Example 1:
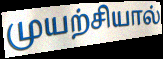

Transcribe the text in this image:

முயற்சியால்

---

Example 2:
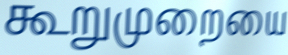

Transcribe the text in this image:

கூறுமுறையை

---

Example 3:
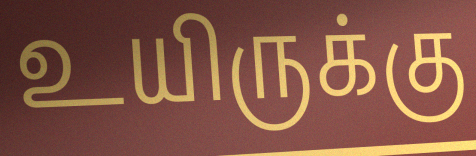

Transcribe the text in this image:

உயிருக்கு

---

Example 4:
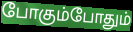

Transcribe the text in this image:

போகும்போதும்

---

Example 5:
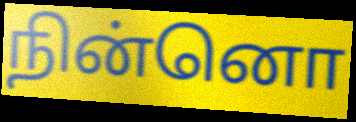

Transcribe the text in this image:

நின்னொ